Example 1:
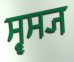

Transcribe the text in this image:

ਸ੍ਵਸ੍ਯ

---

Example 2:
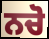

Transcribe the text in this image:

ਨਚੋ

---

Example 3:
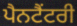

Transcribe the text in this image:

ਪੈਨਟੈਂਟਰੀ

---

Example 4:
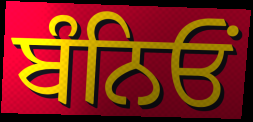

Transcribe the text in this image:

ਬੰਨਿਓਂ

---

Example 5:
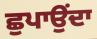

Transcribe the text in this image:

ਛੁਪਾਉਂਦਾ